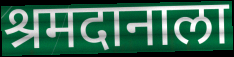
श्रमदानाला